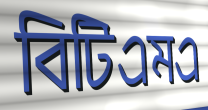
বিটিএমএ